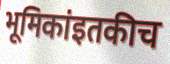
भूमिकांइतकीच